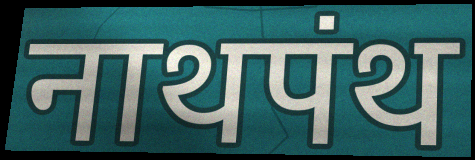
नाथपंथ